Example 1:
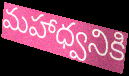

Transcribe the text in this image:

మహాధ్వనికి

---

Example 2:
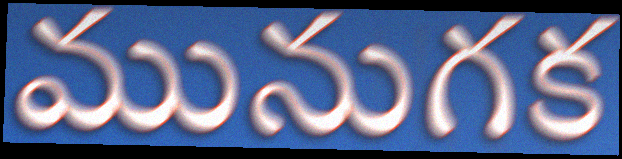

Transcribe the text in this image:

మునుగక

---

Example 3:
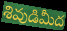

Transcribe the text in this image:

శివుడిమీద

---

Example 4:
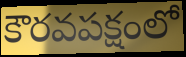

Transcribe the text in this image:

కౌరవపక్షంలో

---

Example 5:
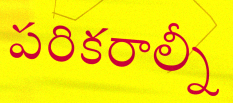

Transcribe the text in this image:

పరికరాల్నీ